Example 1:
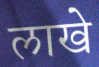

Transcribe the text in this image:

लाखे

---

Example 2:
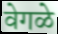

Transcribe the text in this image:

वेगळे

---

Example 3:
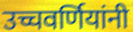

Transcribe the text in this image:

उच्चवर्णियांनी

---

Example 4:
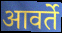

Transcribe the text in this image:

आवर्ते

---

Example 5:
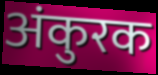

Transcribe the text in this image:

अंकुरक